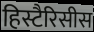
हिस्टैरिसीस